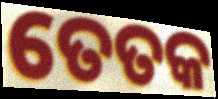
ତେତକ